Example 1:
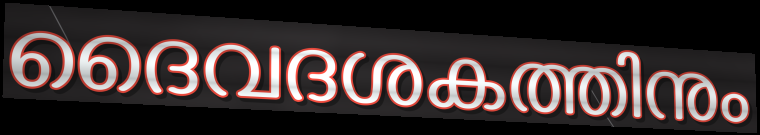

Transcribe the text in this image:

ദൈവദശകത്തിനും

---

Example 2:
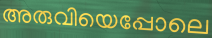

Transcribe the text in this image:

അരുവിയെപ്പോലെ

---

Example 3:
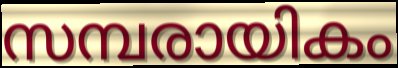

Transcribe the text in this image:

സമ്പരായികം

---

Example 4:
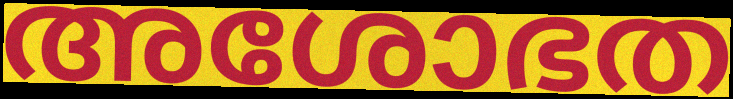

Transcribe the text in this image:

അശോഭത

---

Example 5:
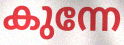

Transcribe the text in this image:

കുന്നേ